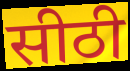
सीठी